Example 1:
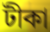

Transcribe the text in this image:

টীকা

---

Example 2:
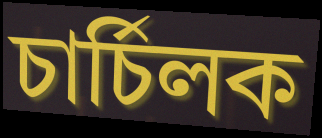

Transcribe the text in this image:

চাৰ্চিলক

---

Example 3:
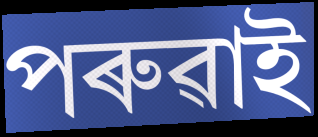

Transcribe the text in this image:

পৰুৱাই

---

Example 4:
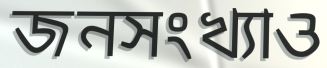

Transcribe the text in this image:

জনসংখ্যাও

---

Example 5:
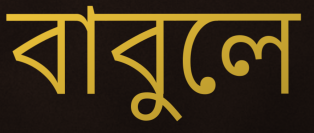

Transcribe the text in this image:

বাবুলে